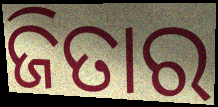
ଜିତାର